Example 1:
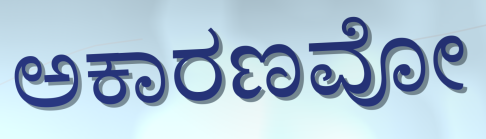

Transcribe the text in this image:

ಅಕಾರಣವೋ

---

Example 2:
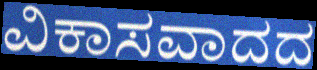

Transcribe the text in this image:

ವಿಕಾಸವಾದದ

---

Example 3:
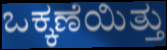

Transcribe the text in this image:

ಒಕ್ಕಣೆಯಿತ್ತು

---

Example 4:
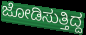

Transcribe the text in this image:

ಜೋಡಿಸುತ್ತಿದ್ದ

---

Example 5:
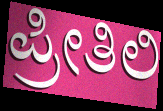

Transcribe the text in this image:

ಪ್ರೀತಿಲಿ